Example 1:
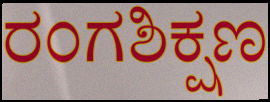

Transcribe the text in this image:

ರಂಗಶಿಕ್ಷಣ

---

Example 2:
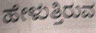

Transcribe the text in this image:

ಹೇಳುತ್ತಿರುವ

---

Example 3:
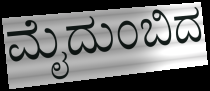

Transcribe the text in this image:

ಮೈದುಂಬಿದ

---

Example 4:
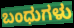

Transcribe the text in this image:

ಬಂಧುಗಳು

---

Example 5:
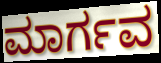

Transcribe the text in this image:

ಮಾರ್ಗವ